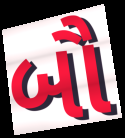
બૌ